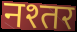
नश्तर